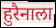
हुरैनाला